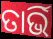
ତାର୍ଭି